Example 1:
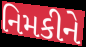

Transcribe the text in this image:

નિમકીને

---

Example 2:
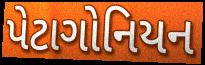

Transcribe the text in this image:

પેટાગોનિયન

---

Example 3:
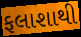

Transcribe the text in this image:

ફલાશાથી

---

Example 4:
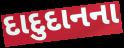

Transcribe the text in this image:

દાદુદાનના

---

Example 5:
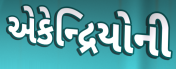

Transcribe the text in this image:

એકેન્દ્રિયોની